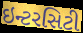
ઇન્ટરસિટી